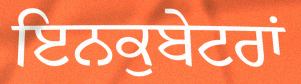
ਇਨਕੁਬੇਟਰਾਂ